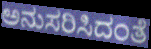
ಅನುಸರಿಸಿದಂತೆ